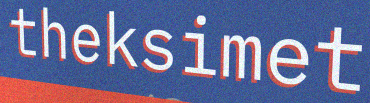
theksimet